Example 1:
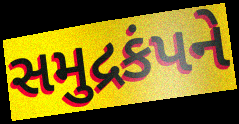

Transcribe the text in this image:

સમુદ્રકંપને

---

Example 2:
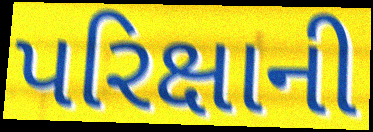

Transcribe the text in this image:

પરિક્ષાની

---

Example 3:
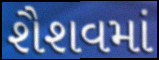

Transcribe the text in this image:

શૈશવમાં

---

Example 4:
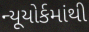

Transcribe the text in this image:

ન્યૂયોર્કમાંથી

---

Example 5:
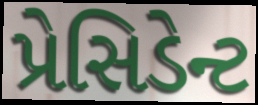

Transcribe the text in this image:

પ્રેસિડેન્ટ